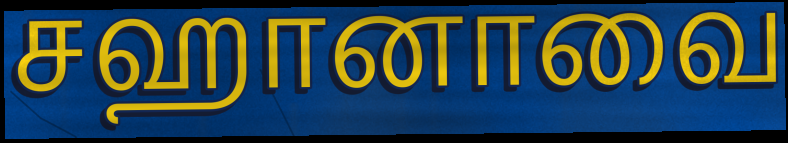
சஹானாவை